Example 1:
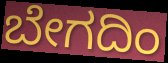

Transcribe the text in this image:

ಬೇಗದಿಂ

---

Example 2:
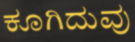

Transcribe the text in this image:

ಕೂಗಿದುವು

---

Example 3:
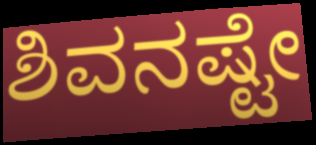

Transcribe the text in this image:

ಶಿವನಷ್ಟೇ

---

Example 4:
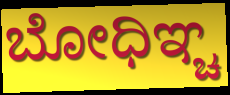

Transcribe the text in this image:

ಬೋಧಿಞ್ಚ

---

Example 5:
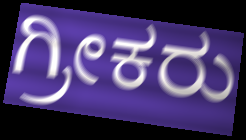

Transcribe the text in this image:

ಗ್ರೀಕರು